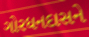
ગોરધનદાસને